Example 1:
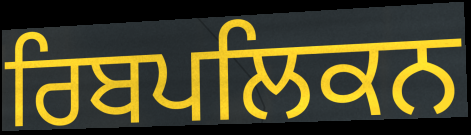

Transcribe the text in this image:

ਰਿਬਪਲਿਕਨ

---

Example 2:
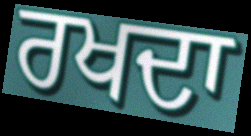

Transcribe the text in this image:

ਰਖਦਾ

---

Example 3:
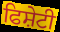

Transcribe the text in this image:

ਫਿਸ਼ੇਟੀ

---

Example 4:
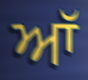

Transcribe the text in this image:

ਆੱ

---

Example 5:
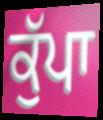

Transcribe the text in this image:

ਕੁੱਪਾ